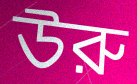
উরু